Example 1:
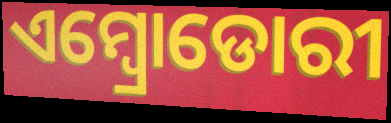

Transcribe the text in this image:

ଏମ୍ବ୍ରୋଡୋରୀ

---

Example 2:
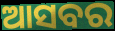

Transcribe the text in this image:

ଆସବର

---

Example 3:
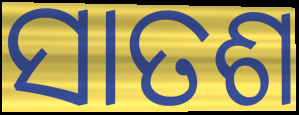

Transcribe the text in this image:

ସାତଶ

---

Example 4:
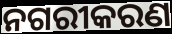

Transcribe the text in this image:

ନଗରୀକରଣ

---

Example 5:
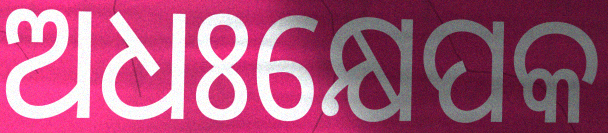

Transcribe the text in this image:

ଅଧଃକ୍ଷେପକ